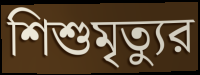
শিশুমৃত্যুর